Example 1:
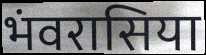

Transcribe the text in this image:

भंवरासिया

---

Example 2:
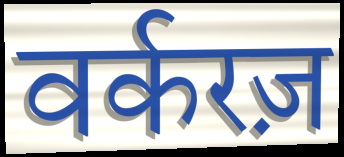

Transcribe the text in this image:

वर्करज़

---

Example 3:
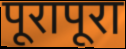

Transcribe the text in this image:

पूरापूरा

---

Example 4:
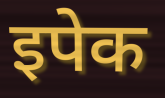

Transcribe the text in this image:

इपेक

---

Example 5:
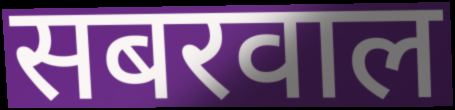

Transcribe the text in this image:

सबरवाल